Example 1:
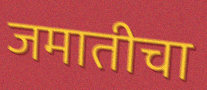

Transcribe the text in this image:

जमातीचा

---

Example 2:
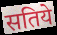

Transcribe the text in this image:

सतिये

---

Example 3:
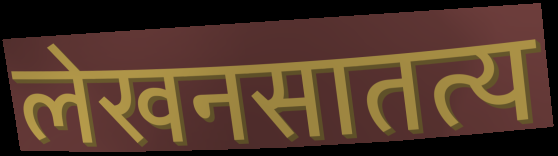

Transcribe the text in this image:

लेखनसातत्य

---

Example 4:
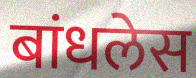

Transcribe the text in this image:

बांधलेस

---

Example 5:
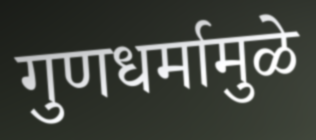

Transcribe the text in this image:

गुणधर्मामुळे